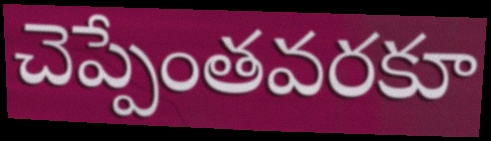
చెప్పేంతవరకూ